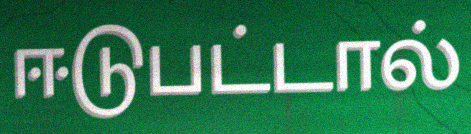
ஈடுபட்டால்